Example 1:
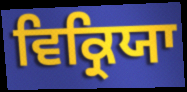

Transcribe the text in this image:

ਵਿਕ੍ਰਿਯਾ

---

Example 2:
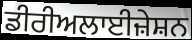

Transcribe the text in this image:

ਡੀਰੀਅਲਾਈਜ਼ੇਸ਼ਨ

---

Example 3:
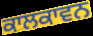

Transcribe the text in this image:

ਕਾਲਕਾਵਨ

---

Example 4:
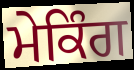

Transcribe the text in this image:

ਮੇਕਿੰਗ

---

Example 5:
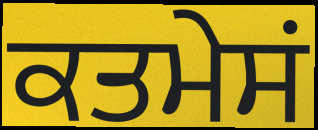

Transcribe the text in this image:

ਕਤਮੇਸਂ